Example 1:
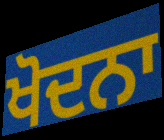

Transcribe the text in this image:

ਖੋਦਨਾ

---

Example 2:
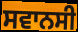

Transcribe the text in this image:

ਸਵਾਨਸੀ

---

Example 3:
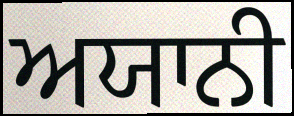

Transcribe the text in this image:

ਅਯਾਨੀ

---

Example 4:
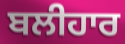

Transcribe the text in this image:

ਬਲੀਹਾਰ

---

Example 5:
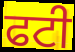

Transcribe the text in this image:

ਫਟੀ